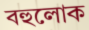
বহুলোক